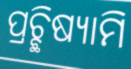
ପ୍ରଚ୍ଛିଷ୍ୟାମି